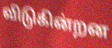
விடுகின்றன